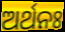
ଅର୍ଥନଃ